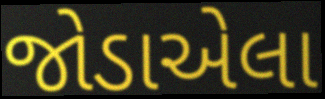
જોડાએલા